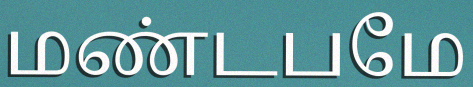
மண்டபமே